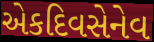
એકદિવસેનેવ